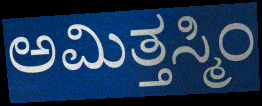
ಅಮಿತ್ತಸ್ಮಿಂ